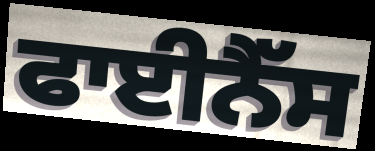
ਫਾਈਨੈੱਸ